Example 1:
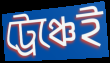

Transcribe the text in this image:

ট্রেঞ্চেই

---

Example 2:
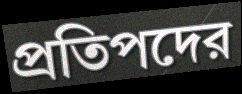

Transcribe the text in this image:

প্রতিপদের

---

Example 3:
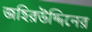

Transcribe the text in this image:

জহিরউদ্দিনের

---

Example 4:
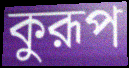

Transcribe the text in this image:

কুরূপ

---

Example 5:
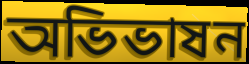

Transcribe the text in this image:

অভিভাষন